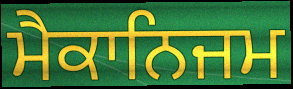
ਮੈਕਾਨਿਜਮ